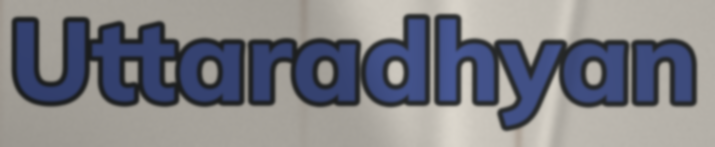
Uttaradhyan